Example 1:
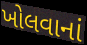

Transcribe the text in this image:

ખોલવાનાં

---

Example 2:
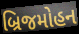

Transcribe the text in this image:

બ્રિજમોહન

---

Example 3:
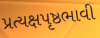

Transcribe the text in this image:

પ્રત્યક્ષપૃષ્ઠભાવી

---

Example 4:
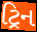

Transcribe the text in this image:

ટ્રિન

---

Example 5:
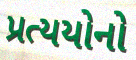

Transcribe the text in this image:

પ્રત્યયોનો